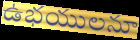
ఉభయులనూ